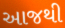
આજથી